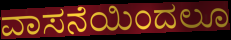
ವಾಸನೆಯಿಂದಲೂ